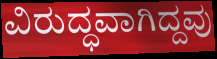
ವಿರುದ್ಧವಾಗಿದ್ದವು